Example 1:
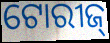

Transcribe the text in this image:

ଟୋରୀଜ୍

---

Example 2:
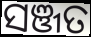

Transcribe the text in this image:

ସଞ୍ଜତ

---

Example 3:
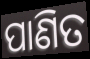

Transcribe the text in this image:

ପାଣିତ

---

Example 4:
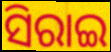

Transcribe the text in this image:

ସିରାଇ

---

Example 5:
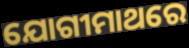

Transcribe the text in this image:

ଯୋଗୀମାଥରେ